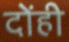
दोंही